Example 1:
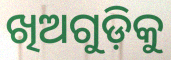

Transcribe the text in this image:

ଖିଅଗୁଡ଼ିକୁ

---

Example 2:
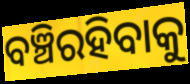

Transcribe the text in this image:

ବଞ୍ଚିରହିବାକୁ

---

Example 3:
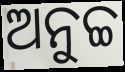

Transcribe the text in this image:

ଅନୁଚ୍ଚ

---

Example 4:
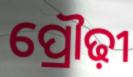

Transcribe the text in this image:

ପ୍ରୌଢ଼ୀ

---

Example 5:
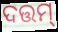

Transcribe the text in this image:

ଦତ୍ତମ୍